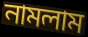
নামলাম